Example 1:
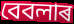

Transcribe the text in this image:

বেবলাৰ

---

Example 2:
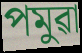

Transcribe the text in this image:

পমুৱা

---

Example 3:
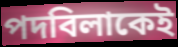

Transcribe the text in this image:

পদবিলাকেই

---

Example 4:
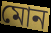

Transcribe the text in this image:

মোন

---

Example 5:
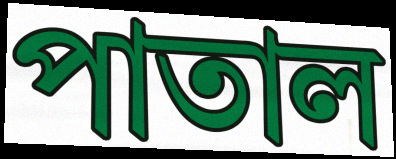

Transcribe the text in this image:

পাতাল